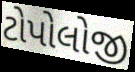
ટોપોલોજી